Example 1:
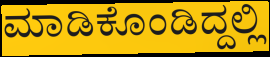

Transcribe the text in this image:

ಮಾಡಿಕೊಂಡಿದ್ದಲ್ಲಿ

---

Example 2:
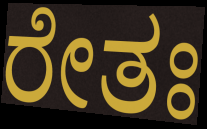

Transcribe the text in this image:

ರೇತಃ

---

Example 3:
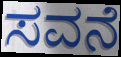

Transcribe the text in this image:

ಸವನೆ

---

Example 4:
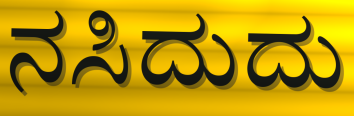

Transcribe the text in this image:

ನಸಿದುದು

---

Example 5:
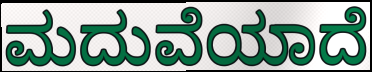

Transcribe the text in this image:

ಮದುವೆಯಾದೆ